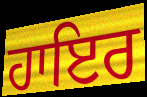
ਹਾਇਰ